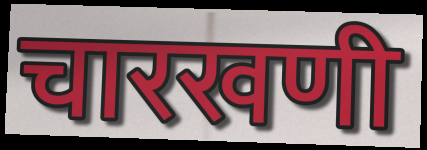
चारखणी